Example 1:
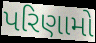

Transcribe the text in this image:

પરિણામો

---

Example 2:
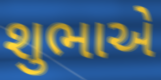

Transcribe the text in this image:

શુભાએ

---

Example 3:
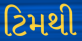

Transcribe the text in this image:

ટિમથી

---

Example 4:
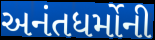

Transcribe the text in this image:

અનંતધર્મોની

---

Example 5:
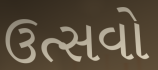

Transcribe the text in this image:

ઉત્સવો